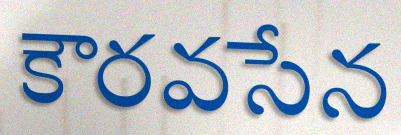
కౌరవసేన